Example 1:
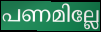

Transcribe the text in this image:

പണമില്ലേ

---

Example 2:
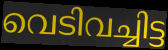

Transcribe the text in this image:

വെടിവച്ചിട്ട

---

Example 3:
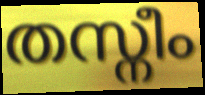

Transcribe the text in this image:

തസ്നീം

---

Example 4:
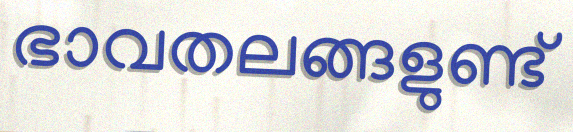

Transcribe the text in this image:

ഭാവതലങ്ങളുണ്ട്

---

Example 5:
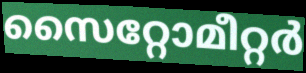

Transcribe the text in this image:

സൈറ്റോമീറ്റർ